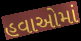
હવાઓમાં